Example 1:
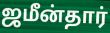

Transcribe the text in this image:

ஜமீன்தார்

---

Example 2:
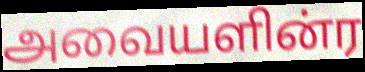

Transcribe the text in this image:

அவையளின்ர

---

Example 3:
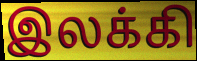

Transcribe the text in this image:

இலக்கி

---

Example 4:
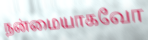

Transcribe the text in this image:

நன்மையாகவோ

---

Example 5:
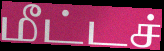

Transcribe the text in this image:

மீட்டச்